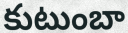
కుటుంబా